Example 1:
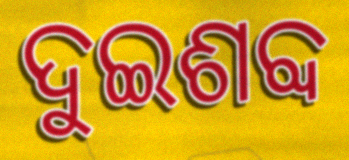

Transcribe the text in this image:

ଦୁଇଶବ୍ଦ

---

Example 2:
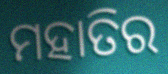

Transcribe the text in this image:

ମହାତିର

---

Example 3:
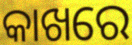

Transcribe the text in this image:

କାଖରେ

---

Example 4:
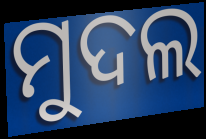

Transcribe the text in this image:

ମୁଦଲ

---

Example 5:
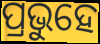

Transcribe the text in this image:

ପ୍ରଭୁହେ